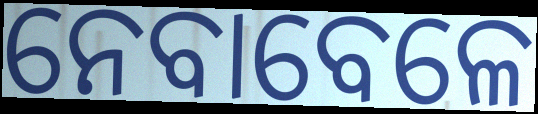
ନେବାବେଳେ